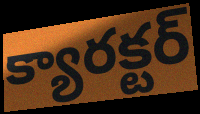
క్యారక్టర్